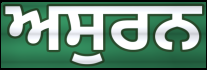
ਅਸੁਰਨ